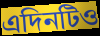
এদিনটিও